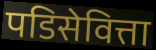
पडिसेवित्ता